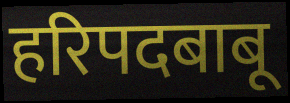
हरिपदबाबू